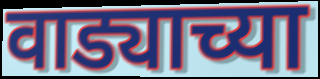
वाड्याच्या